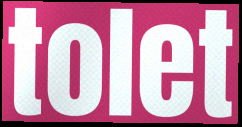
tolet